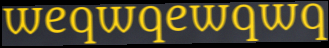
weqwqewqwq